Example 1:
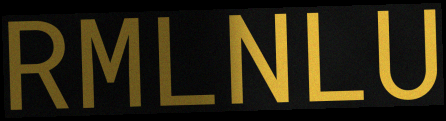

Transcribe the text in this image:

RMLNLU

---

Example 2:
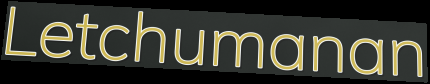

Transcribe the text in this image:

Letchumanan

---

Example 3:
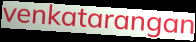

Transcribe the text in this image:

venkatarangan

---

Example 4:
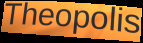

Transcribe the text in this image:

Theopolis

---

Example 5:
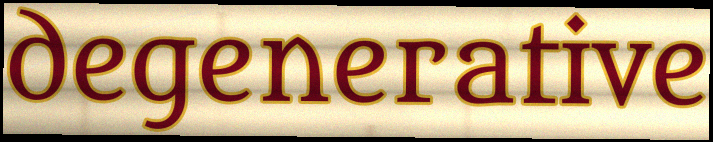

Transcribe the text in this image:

degenerative